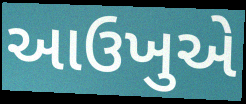
આઉખુએ